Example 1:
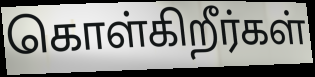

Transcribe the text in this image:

கொள்கிறீர்கள்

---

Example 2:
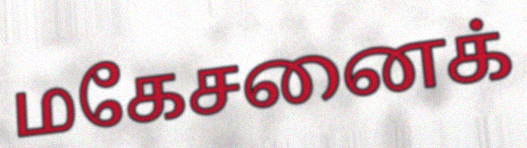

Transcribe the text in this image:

மகேசனைக்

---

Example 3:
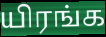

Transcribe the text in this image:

யிரங்க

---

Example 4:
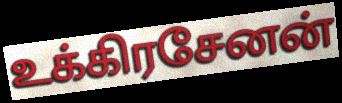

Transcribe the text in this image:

உக்கிரசேனன்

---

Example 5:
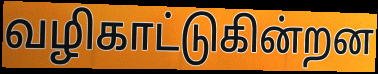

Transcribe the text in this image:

வழிகாட்டுகின்றன